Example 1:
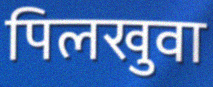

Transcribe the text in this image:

पिलखुवा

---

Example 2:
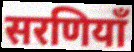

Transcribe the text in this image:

सरणियाँ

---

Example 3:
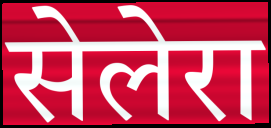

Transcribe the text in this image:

सेलेरा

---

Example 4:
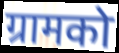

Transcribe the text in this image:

ग्रामको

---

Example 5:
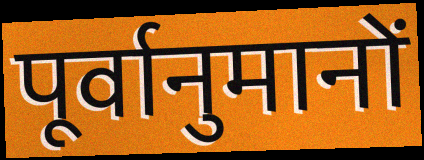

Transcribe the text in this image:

पूर्वानुमानों